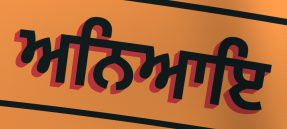
ਅਨਿਆਇ